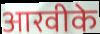
आरवीके